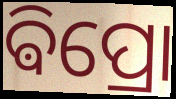
ଵିପ୍ରୋ